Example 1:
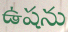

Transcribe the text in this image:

ఉషను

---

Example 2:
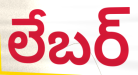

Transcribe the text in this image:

లేబర్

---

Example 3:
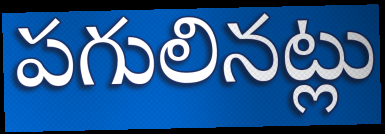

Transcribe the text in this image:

పగులినట్లు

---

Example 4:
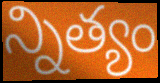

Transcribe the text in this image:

న్నిత్యం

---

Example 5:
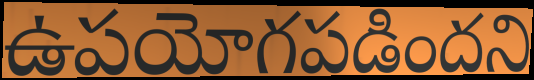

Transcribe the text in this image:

ఉపయోగపడిందని